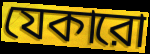
যেকারো